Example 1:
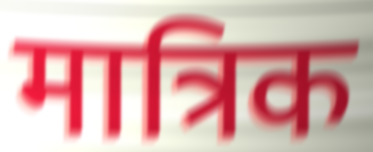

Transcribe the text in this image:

मात्रिक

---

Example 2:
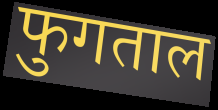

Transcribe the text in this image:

फुगताल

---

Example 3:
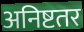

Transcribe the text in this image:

अनिष्टतर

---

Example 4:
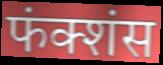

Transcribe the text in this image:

फंक्शंस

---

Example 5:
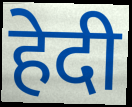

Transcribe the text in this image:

हेदी